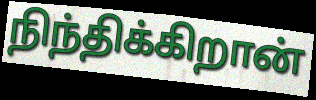
நிந்திக்கிறான்